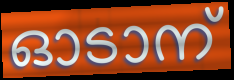
ഓടാന്